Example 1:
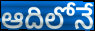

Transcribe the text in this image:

ఆదిలోనే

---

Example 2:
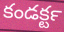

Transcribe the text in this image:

కండక్టర్‍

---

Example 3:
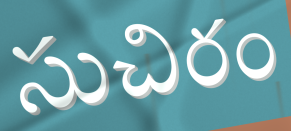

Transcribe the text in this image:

సుచిరం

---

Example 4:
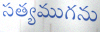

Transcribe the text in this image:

సత్యముగను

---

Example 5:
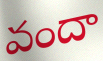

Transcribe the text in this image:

వందా